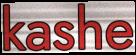
kashe